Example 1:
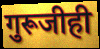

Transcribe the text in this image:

गुरूजीही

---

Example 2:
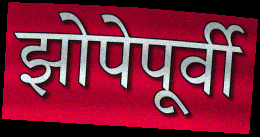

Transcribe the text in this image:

झोपेपूर्वी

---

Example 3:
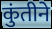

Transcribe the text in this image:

कुंतीने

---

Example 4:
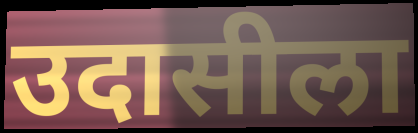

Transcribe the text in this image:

उदासीला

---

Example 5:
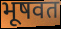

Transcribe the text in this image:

भूषवत